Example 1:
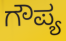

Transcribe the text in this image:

ಗೌಪ್ಯ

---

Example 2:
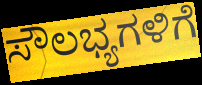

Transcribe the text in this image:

ಸೌಲಭ್ಯಗಳಿಗೆ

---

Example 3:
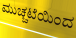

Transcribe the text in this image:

ಮುಚ್ಚಟೆಯಿಂದ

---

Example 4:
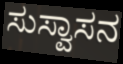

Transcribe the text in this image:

ಸುಸ್ವಾಸನ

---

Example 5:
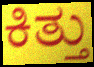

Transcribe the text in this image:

ಕಿತ್ತು